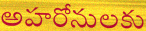
అహరోనులకు